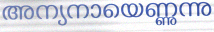
അന്യനായെണ്ണുന്നു